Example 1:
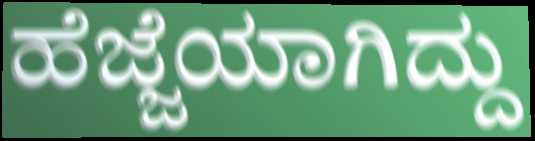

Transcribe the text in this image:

ಹೆಜ್ಜೆಯಾಗಿದ್ದು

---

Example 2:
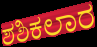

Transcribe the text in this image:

ಶಶಿಕಲಾರ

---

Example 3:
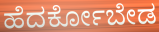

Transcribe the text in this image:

ಹೆದರ್ಕೋಬೇಡ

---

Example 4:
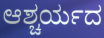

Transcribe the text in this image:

ಆಶ್ಚರ್ಯದ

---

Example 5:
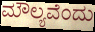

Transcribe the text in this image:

ಮೌಲ್ಯವೆಂದು